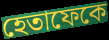
হেতাফেকে